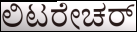
ಲಿಟರೇಚರ್